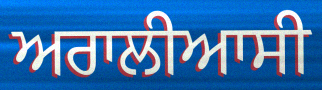
ਅਰਾਲੀਆਸੀ